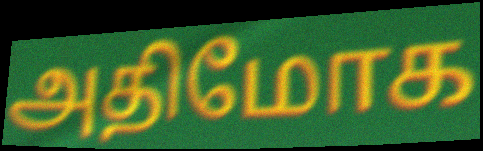
அதிமோக